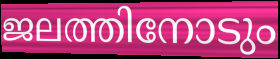
ജലത്തിനോടും